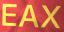
EAX